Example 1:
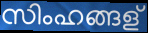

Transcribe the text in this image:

സിംഹങ്ങള്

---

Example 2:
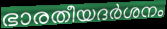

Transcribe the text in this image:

ഭാരതീയദർശനം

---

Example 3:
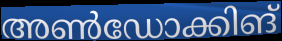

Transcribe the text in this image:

അൺഡോക്കിങ്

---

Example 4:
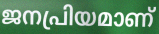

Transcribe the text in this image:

ജനപ്രിയമാണ്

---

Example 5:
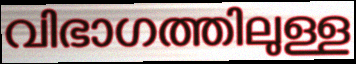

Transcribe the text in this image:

വിഭാഗത്തിലുള്ള